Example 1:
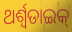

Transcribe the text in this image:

ଥର୍ଶ୍ଵଡାଇକ୍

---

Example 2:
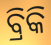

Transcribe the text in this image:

ବ୍ରିକି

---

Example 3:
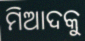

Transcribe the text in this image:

ମିଆଦକୁ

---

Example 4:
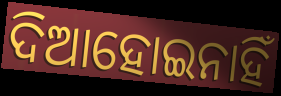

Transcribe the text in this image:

ଦିଆହୋଇନାହିଁ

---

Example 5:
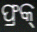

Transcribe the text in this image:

ଫ୍ରକ୍